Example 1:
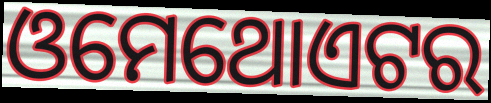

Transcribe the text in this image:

ଓମେଥୋଏଟର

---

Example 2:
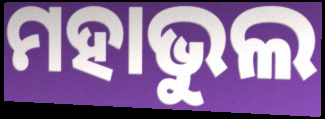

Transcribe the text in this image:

ମହାଭୁଲ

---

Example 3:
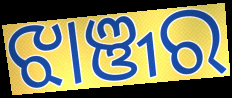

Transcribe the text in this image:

ଝାଞ୍ଜର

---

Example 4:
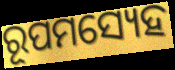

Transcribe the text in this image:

ରୂପମସ୍ୟେହ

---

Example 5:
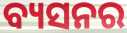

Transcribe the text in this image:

ବ୍ୟସନର